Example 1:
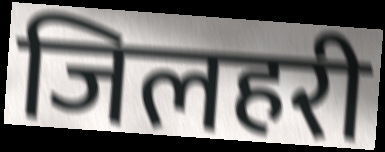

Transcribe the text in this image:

जिलहरी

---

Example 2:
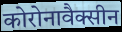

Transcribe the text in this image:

कोरोनावैक्सीन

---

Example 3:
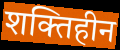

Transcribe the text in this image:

शक्तिहीन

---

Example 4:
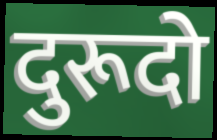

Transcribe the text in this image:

दुरूदो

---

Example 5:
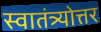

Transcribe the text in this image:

स्वातंत्र्योत्तर